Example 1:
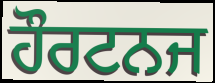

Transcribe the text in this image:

ਹੌਰਟਨਜ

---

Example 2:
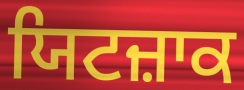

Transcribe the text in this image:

ਯਿਟਜ਼ਾਕ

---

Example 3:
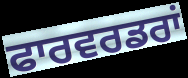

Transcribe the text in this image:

ਫਾਰਵਰਡਰਾਂ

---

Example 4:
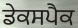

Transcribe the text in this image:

ਡੇਕਸਪੈਕ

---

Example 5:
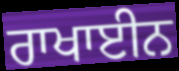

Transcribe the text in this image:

ਰਾਖਾਈਨ